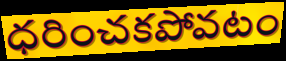
ధరించకపోవటం